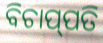
ବିଚାପ୍‌ପତି